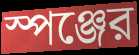
স্পঞ্জের